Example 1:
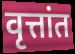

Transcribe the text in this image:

वृत्तांत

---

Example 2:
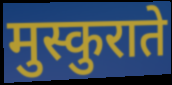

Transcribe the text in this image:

मुस्कुराते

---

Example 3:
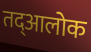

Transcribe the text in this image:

तद्आलोक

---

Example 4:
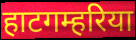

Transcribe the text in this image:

हाटगम्हरिया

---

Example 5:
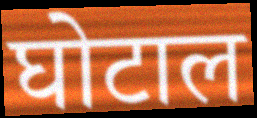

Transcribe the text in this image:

घोटाल